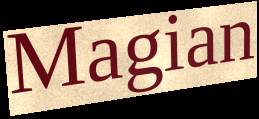
Magian